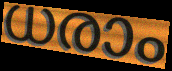
ധരാം